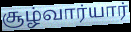
சூழ்வார்யார்